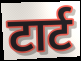
टार्ट